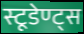
स्टूडेण्ट्स